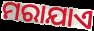
ମରାଯାଏ